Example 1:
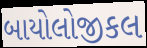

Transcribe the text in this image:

બાયોલોજીકલ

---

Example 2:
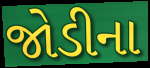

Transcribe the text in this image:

જોડીના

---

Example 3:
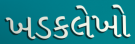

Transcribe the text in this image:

ખડકલેખો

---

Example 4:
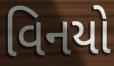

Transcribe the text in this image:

વિનયો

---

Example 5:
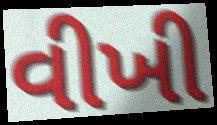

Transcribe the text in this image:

વીખી